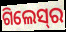
ଗିଲେସ୍‍ର